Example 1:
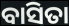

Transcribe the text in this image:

ବାସିତା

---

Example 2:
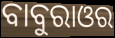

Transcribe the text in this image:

ବାବୁରାଓର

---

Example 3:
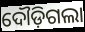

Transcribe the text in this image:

ଦୌଡ଼ିଗଲା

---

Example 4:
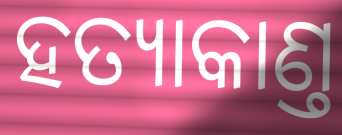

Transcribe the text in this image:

ହତ୍ୟାକାଣ୍ତ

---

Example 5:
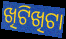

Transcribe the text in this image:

ଖିଟିଖିଟା